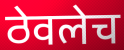
ठेवलेच